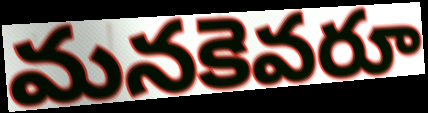
మనకెవరూ